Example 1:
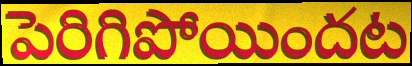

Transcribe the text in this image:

పెరిగిపోయిందట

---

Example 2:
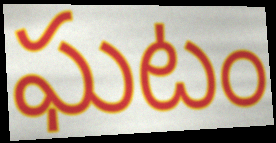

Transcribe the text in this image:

ఘటం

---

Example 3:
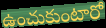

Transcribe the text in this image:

ఉంచుకుంటారో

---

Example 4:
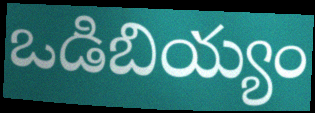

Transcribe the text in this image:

ఒడిబియ్యం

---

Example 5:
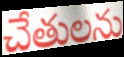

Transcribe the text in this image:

చేతులను